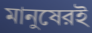
মানুষেরই